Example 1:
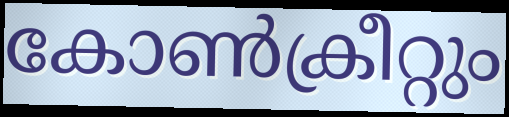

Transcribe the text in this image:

കോൺക്രീറ്റും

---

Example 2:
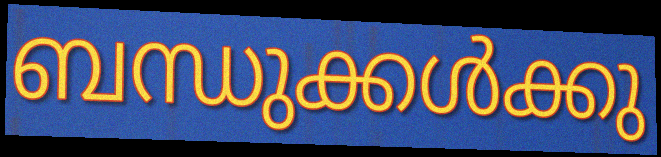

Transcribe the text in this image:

ബന്ധുക്കൾക്കു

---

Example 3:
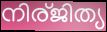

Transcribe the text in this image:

നിര്ജിത്യ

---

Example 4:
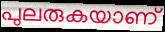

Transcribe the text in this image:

പുലരുകയാണ്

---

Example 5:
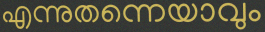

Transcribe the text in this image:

എന്നുതന്നെയാവും